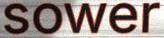
sower